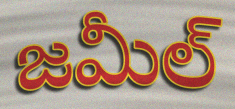
జమీల్